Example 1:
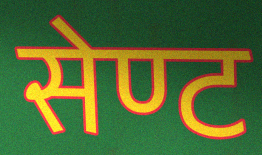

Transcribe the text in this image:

सेण्ट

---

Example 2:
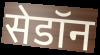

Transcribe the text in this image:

सेडॉन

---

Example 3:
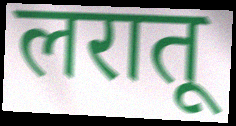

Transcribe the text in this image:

लरातू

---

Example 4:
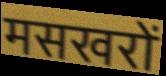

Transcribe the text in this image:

मसखरों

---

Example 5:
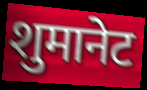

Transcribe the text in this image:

शुमानेट